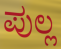
ಪುಲ್ಲ